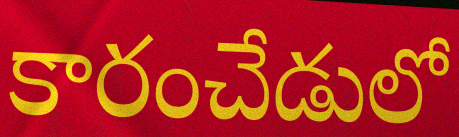
కారంచేడులో